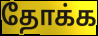
தோக்க